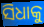
ସିଧାକୁ